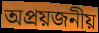
অপ্রয়জনীয়